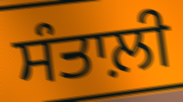
ਸੰਤਾਲ਼ੀ